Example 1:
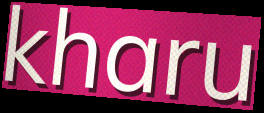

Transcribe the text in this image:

kharu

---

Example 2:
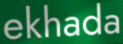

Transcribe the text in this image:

ekhada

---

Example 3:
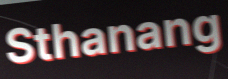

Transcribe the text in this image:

Sthanang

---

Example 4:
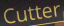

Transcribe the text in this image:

Cutter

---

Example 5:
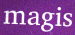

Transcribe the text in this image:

magis